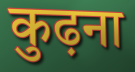
कुढ़ना